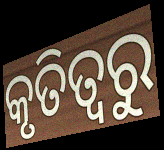
କୃତିତ୍ଵରୁ